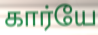
கார்யே